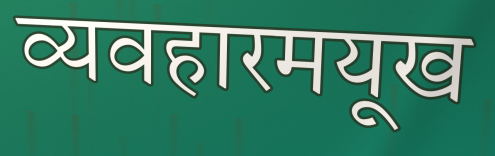
व्यवहारमयूख